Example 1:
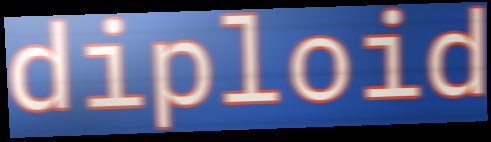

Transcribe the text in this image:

diploid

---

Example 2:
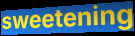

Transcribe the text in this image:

sweetening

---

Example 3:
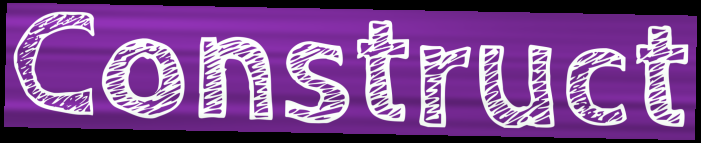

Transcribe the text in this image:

Construct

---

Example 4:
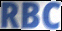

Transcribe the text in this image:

RBC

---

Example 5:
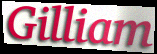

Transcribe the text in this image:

Gilliam